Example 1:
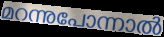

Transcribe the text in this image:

മറന്നുപോന്നാൽ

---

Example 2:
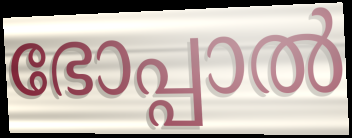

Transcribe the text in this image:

ഭോപ്പാൽ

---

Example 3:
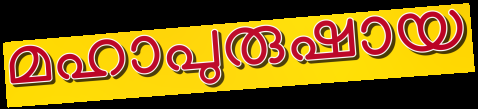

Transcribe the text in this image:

മഹാപുരുഷായ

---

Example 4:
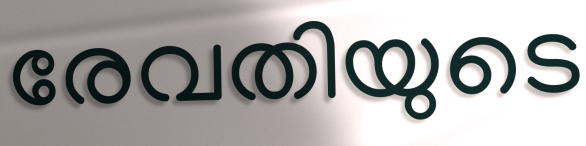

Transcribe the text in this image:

രേവതിയുടെ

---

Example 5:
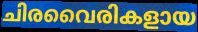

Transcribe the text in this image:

ചിരവൈരികളായ